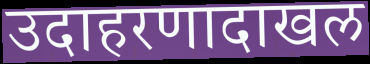
उदाहरणादाखल